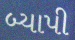
બ્યાપી